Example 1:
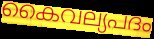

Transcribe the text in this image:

കൈവല്യപദം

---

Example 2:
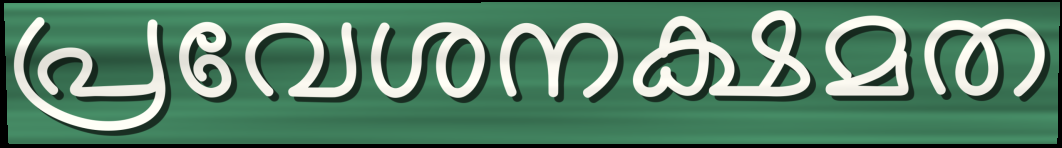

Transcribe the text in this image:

പ്രവേശനക്ഷമത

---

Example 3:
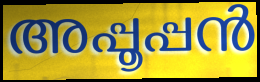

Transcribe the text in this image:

അപ്പൂപ്പൻ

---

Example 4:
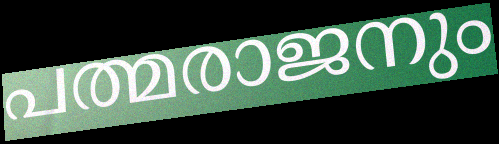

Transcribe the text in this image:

പത്മരാജനും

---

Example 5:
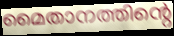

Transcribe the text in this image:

മൈതാനത്തിന്റെ